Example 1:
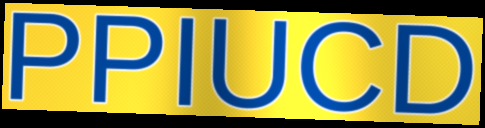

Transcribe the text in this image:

PPIUCD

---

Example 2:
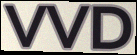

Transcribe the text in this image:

VVD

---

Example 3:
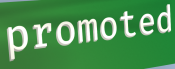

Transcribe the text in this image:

promoted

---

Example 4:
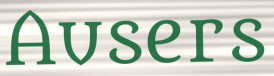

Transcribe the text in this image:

Ausers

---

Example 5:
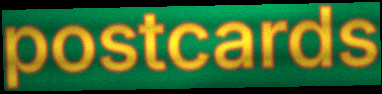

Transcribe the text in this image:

postcards